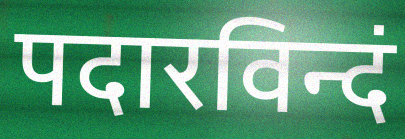
पदारविन्दं